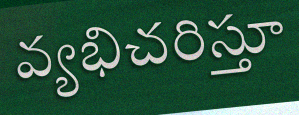
వ్యభిచరిస్తూ